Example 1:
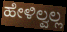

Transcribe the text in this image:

ಹೇಳಿಲ್ವಲ್ಲ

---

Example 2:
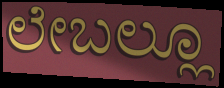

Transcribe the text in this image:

ಲೇಬಲ್ಲೂ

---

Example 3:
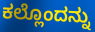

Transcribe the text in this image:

ಕಲ್ಲೊಂದನ್ನು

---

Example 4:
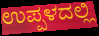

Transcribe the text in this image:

ಉಪ್ಪಳದಲ್ಲಿ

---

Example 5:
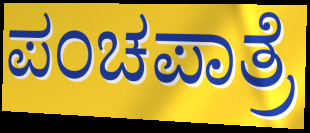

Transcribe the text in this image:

ಪಂಚಪಾತ್ರೆ